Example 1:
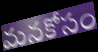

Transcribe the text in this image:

మనకోసం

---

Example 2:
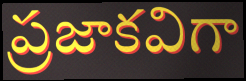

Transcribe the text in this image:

ప్రజాకవిగా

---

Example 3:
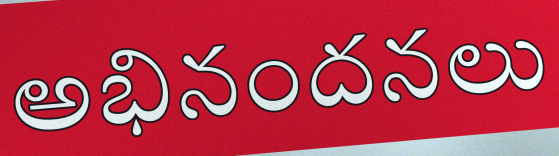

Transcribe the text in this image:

అభినందనలు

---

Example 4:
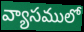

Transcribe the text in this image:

వ్యాసములో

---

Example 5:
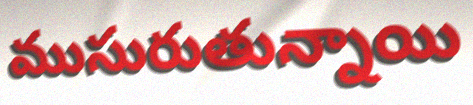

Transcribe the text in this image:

ముసురుతున్నాయి